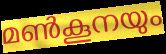
മൺകൂനയും